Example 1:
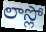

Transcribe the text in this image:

లాస్లో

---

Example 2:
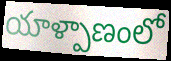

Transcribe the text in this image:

యాళ్పాణంలో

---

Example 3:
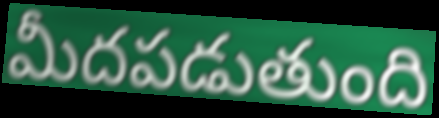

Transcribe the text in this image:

మీదపడుతుంది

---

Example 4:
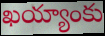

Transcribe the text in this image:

ఖయ్యాంకు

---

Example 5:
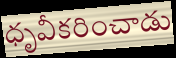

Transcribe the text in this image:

ధృవీకరించాడు